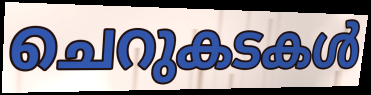
ചെറുകടകൾ